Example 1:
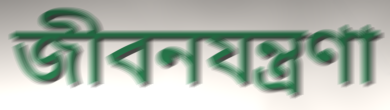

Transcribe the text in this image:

জীবনযন্ত্রণা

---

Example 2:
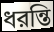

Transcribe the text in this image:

ধরন্তি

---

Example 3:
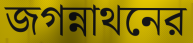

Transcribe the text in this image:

জগন্নাথনের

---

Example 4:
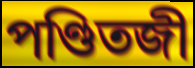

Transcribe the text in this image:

পণ্ডিতজী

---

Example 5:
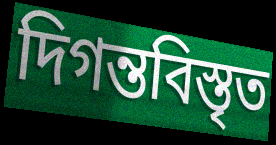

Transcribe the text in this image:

দিগন্তবিস্তৃত